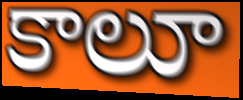
కాలూ